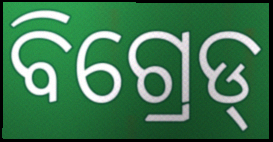
ବିଗ୍ରେଡ୍